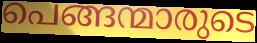
പെങ്ങന്മാരുടെ